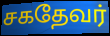
சகதேவர்